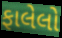
ફાલેલો